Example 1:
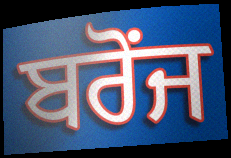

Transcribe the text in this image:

ਬਰੋਂਜ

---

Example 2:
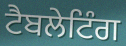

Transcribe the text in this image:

ਟੈਬਲੇਟਿੰਗ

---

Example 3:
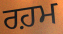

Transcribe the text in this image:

ਰਹ਼ਮ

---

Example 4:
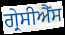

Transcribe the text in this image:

ਗ੍ਰੇਸੀਐੱਸ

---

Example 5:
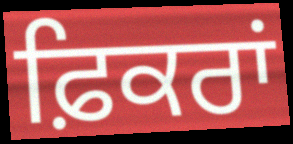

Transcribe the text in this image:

ਫ਼ਿਕਰਾਂ